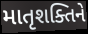
માતૃશક્તિને